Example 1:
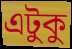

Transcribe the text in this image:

এটুকু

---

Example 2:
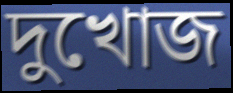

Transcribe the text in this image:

দুখোজ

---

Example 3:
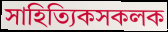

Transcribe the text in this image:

সাহিত্যিকসকলক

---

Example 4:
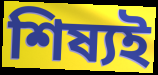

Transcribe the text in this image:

শিষ্যই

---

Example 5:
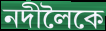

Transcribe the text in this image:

নদীলৈকে